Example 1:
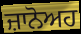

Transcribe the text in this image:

ਜ਼ਾਨੋਅਹ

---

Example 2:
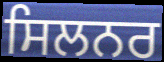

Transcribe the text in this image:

ਸਿਲਨਰ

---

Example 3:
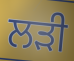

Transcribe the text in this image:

ਲਡ਼ੀ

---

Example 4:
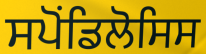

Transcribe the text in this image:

ਸਪੋਂਡਿਲੋਸਿਸ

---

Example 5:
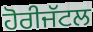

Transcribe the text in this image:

ਹੋਰੀਜੱਟਲ